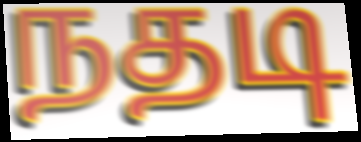
நதடி